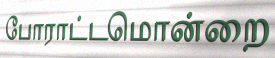
போராட்டமொன்றை